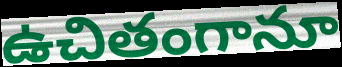
ఉచితంగానూ